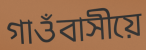
গাওঁবাসীয়ে